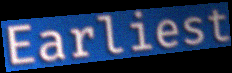
Earliest